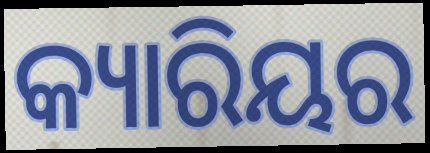
କ୍ୟାରିୟର